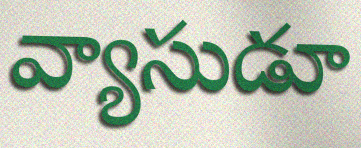
వ్యాసుడూ